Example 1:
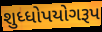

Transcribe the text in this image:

શુધ્ધોપયોગરૂપ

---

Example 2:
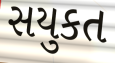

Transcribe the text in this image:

સયુકત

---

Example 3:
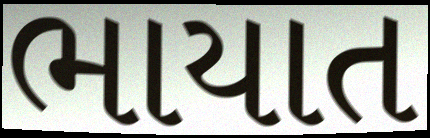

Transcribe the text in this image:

ભાયાત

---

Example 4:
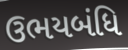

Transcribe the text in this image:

ઉભયબંધિ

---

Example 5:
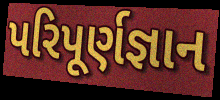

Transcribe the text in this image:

પરિપૂર્ણજ્ઞાન